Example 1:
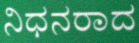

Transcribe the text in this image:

ನಿಧನರಾದ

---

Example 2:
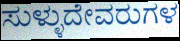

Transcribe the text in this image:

ಸುಳ್ಳುದೇವರುಗಳ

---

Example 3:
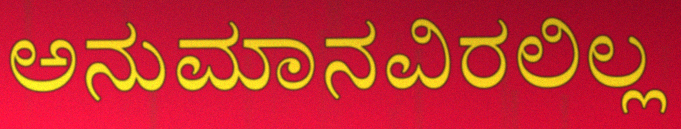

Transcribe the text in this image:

ಅನುಮಾನವಿರಲಿಲ್ಲ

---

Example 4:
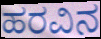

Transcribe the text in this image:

ಹರವಿನ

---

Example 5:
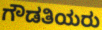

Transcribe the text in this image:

ಗೌಡತಿಯರು